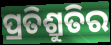
ପ୍ରତିଶ୍ରୁତିର